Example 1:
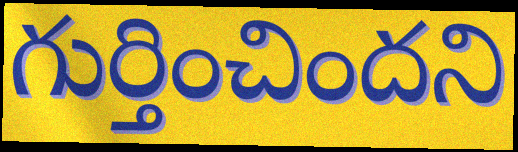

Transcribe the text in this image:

గుర్తించిందని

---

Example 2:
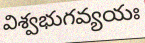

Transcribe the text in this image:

విశ్వభుగవ్యయః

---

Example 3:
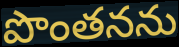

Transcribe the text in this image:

పొంతనను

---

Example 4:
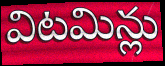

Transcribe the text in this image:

విటమిన్లు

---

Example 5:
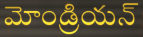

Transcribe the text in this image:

మోండ్రియన్